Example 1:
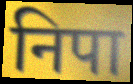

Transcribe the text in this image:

निपा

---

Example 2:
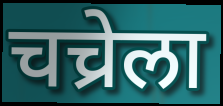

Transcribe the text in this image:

चच्रेला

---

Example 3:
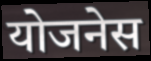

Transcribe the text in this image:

योजनेस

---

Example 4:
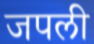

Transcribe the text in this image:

जपली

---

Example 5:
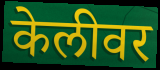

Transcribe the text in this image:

केलीवर